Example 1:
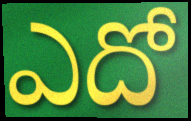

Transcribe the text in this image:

ఎదో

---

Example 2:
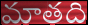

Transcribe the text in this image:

మాతది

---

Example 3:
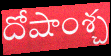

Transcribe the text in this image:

దోషాంశ్చ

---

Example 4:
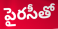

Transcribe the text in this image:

పైరసీతో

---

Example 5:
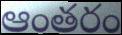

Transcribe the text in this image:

ఆంతరం